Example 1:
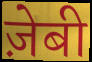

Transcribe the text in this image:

ज़ेबी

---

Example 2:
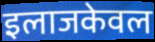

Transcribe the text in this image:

इलाजकेवल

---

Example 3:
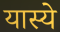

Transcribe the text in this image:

यास्ये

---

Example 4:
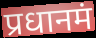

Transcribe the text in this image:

प्रधानमं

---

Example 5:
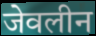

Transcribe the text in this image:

जेवलीन